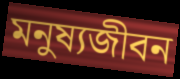
মনুষ্যজীবন